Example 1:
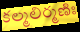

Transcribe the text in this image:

కల్మలిర్మణిః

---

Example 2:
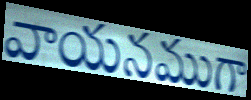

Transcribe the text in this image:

వాయనముగా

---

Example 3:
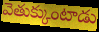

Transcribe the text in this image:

వెతుక్కుంటాడు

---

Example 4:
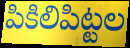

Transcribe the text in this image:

పికిలిపిట్టల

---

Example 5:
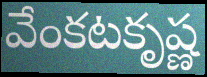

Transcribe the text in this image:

వేంకటకృష్ణ